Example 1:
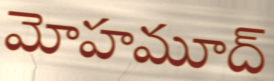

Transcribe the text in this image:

మోహమూద్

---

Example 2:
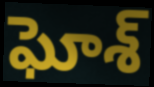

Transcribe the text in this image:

ఘోశ్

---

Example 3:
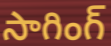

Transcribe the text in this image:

సాగింగ్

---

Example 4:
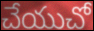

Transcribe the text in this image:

చేయుచో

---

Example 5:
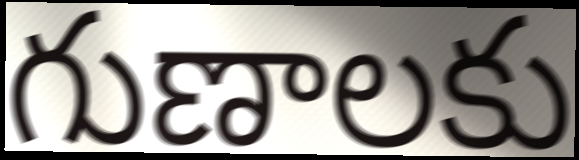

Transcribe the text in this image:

గుణాలకు